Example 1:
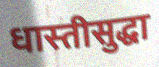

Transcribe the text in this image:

धास्तीसुद्धा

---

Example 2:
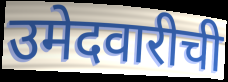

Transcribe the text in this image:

उमेदवारीची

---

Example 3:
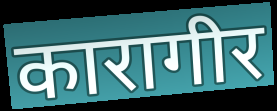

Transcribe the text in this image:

कारागीर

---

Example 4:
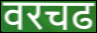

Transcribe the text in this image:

वरचढ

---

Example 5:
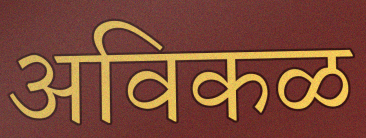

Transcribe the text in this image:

अविकळ